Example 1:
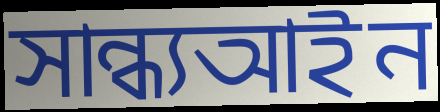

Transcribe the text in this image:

সান্ধ্যআইন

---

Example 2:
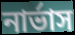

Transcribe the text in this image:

নার্ভাস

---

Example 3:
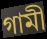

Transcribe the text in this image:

গামী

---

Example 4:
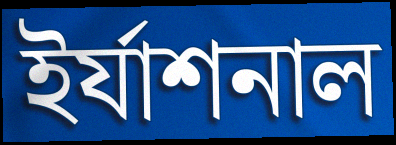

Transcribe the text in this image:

ইর্যাশনাল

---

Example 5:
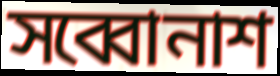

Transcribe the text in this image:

সব্বোনাশ